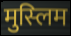
मुस्‍लिम